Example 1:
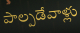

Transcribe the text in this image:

పాల్పడేవాళ్లు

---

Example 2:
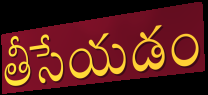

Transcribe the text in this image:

తీసేయడం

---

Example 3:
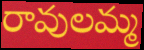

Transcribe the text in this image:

రావులమ్మ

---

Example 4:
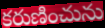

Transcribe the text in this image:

కరుణించును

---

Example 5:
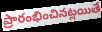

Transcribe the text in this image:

ప్రారంభించినట్లయితే